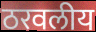
ठरवलीय